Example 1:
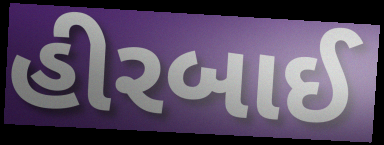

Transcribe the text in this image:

હીરબાઈ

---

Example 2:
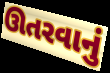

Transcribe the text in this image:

ઊતરવાનું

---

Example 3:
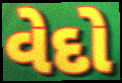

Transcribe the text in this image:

વેદો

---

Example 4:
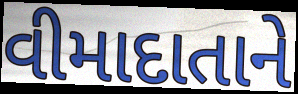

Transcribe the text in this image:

વીમાદાતાને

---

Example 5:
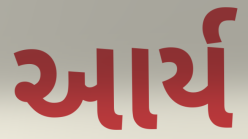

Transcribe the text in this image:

આર્ય